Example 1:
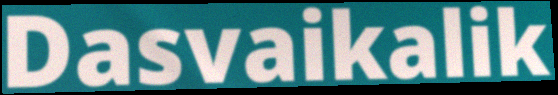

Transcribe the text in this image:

Dasvaikalik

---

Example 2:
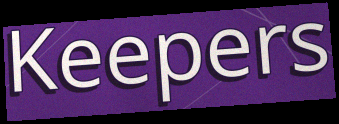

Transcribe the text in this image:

Keepers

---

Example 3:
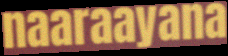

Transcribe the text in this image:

naaraayana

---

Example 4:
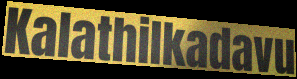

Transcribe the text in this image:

Kalathilkadavu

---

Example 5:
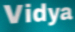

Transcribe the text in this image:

Vidya